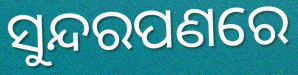
ସୁନ୍ଦରପଣରେ